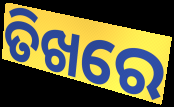
ତିଖରେ